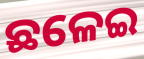
ଛଳେଇ